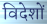
विदेशों